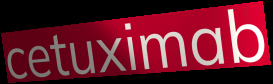
cetuximab